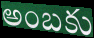
అంబకు